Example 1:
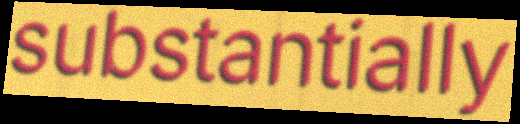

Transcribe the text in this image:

substantially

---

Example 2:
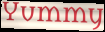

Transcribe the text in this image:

Yummy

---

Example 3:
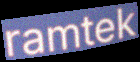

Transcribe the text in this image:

ramtek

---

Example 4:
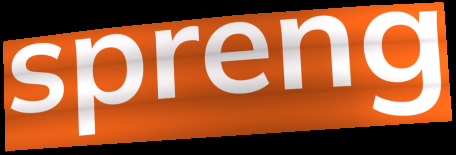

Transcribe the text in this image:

spreng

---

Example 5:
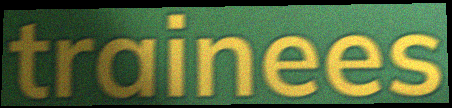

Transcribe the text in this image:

trainees